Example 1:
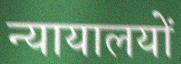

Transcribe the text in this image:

न्यायालयों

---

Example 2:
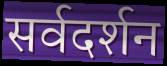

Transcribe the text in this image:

सर्वदर्शन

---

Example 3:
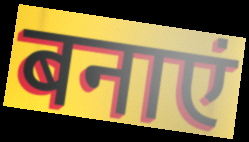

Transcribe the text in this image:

बनाएं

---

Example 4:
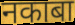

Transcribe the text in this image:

नकाबा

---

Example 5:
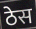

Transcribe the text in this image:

ठेस